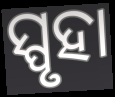
ସ୍ପୃହା